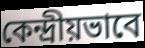
কেন্দ্রীয়ভাবে